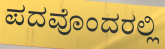
ಪದವೊಂದರಲ್ಲಿ